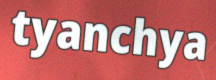
tyanchya